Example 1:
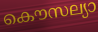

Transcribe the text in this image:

കൌസല്യാ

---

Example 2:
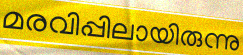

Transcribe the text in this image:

മരവിപ്പിലായിരുന്നു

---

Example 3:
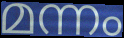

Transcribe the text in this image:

മന്നം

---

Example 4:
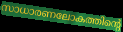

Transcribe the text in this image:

സാധാരണലോകത്തിന്റെ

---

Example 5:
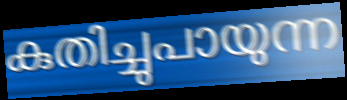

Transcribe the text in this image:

കുതിച്ചുപായുന്ന